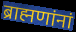
ब्राह्मणांनां